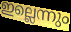
ഇല്ലെന്നും